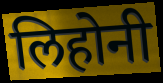
लिहोनी